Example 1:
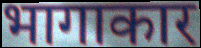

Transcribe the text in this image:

भागाकार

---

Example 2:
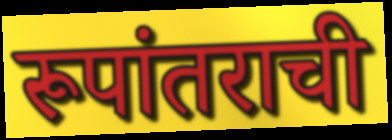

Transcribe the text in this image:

रूपांतराची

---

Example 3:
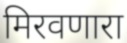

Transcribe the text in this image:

मिरवणारा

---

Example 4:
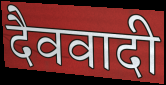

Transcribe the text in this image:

दैववादी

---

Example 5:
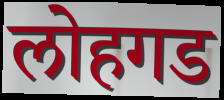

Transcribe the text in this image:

लोहगड